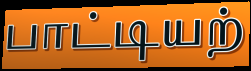
பாட்டியற்